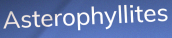
Asterophyllites